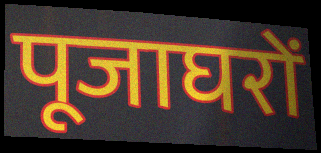
पूजाघरों